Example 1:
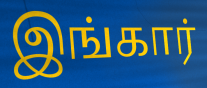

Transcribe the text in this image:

இங்கார்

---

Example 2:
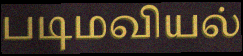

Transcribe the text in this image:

படிமவியல்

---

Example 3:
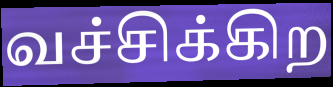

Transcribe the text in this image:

வச்சிக்கிற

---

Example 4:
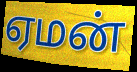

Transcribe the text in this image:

ஏமன்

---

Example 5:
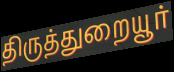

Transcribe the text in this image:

திருத்துறையூர்